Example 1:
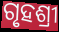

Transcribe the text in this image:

ଗୃହଶ୍ରୀ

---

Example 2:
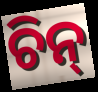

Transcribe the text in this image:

ଚିନ୍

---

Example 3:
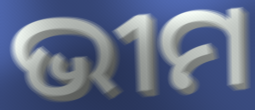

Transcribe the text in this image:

ଭୀମ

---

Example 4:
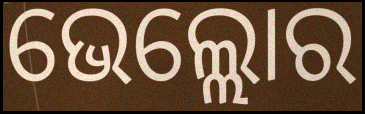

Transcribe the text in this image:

ଭେଲ୍ଲୋର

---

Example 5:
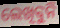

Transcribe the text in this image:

ଲେଖିବୁନି